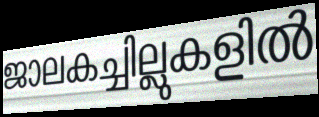
ജാലകച്ചില്ലുകളിൽ